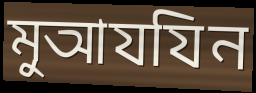
মুআযযিন